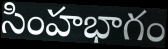
సింహభాగం